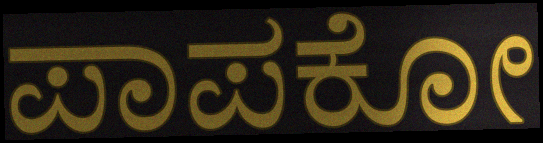
ಪಾಪಕೋ